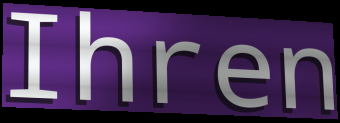
Ihren